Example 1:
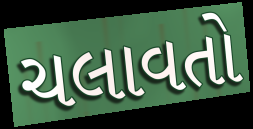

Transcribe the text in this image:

ચલાવતો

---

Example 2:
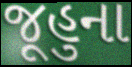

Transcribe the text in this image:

જૂહુના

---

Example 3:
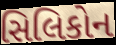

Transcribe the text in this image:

સિલિકોન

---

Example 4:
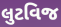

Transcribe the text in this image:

લુટવિજ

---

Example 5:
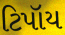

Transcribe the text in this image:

ટિપૉય